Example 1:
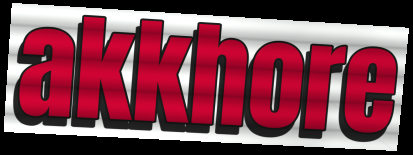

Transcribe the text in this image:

akkhore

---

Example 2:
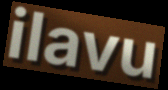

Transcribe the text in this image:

ilavu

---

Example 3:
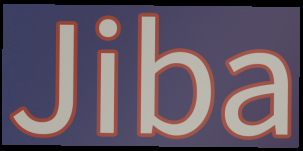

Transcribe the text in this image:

Jiba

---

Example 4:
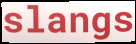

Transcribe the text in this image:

slangs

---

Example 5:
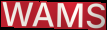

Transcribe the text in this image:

WAMS